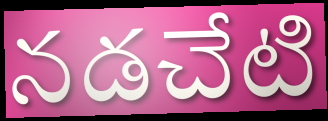
నడచేటి